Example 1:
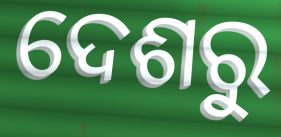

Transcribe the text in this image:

ଦେଶରୁ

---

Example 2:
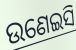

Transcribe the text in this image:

ଉଣେଇସି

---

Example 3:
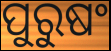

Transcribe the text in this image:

ପୁରୁଷଂ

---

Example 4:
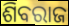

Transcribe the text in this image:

ଶିବରାଜ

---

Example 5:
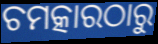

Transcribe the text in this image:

ଚମତ୍କାରଠାରୁ